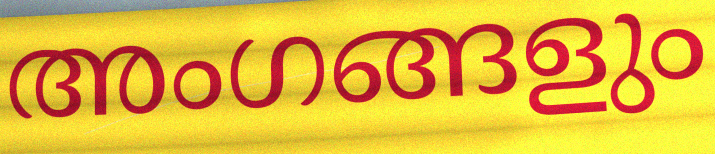
അംഗങ്ങളും